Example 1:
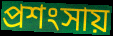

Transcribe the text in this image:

প্রশংসায়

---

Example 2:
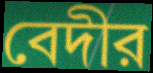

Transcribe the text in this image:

বেদীর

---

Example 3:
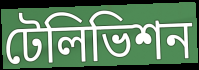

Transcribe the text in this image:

টেলিভিশন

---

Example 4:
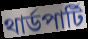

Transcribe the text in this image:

থার্ডপার্টি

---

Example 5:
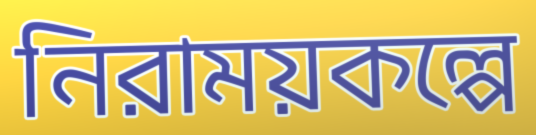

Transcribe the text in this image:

নিরাময়কল্পে